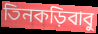
তিনকড়িবাবু